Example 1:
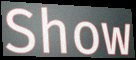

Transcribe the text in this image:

Show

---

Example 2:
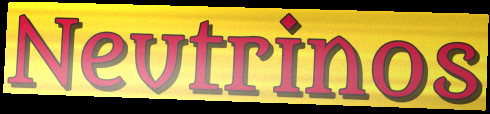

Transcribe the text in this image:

Neutrinos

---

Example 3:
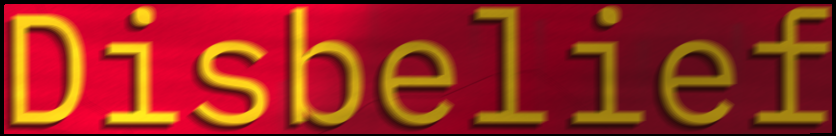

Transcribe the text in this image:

Disbelief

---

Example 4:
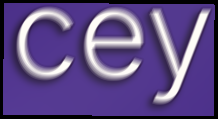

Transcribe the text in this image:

cey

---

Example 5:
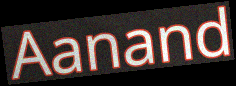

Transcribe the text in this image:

Aanand